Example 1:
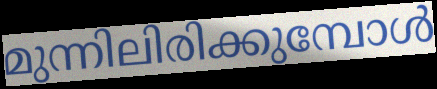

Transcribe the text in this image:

മുന്നിലിരിക്കുമ്പോൾ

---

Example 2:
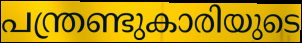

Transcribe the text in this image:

പന്ത്രണ്ടുകാരിയുടെ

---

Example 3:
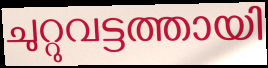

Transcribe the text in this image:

ചുറ്റുവട്ടത്തായി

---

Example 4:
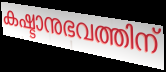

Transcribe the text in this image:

കഷ്ടാനുഭവത്തിന്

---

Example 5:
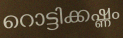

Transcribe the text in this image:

റൊട്ടിക്കഷ്ണം